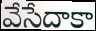
వేసేదాకా